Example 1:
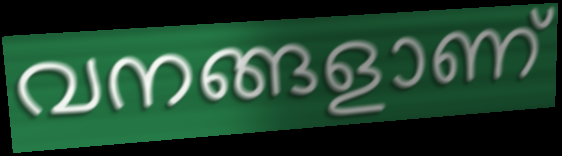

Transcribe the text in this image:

വനങ്ങളാണ്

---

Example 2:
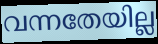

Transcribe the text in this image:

വന്നതേയില്ല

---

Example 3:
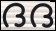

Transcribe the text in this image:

ദദ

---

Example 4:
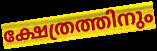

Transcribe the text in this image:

ക്ഷേത്രത്തിനും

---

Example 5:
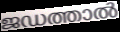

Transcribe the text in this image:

ജഡത്താൽ